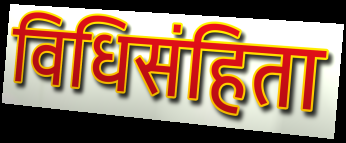
विधिसंहिता